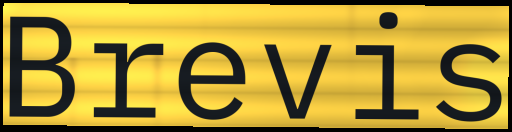
Brevis